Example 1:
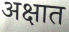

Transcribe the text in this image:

अक्षात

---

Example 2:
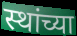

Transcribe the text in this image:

स्थांच्या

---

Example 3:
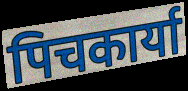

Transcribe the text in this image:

पिचकार्या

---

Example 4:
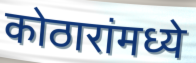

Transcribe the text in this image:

कोठारांमध्ये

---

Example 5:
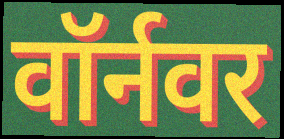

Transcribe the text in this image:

वॉर्नवर